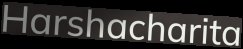
Harshacharita